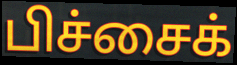
பிச்சைக்